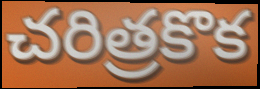
చరిత్రకొక